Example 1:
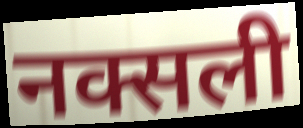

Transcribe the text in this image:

नक्सली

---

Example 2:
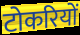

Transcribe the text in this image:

टोकरियों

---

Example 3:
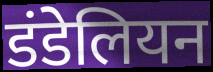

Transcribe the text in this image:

डंडेलियन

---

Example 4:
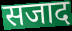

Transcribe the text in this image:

सजाद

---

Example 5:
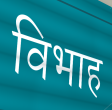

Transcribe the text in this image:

विभाह